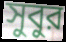
সুবুর